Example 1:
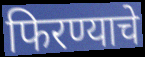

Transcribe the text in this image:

फिरण्याचे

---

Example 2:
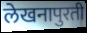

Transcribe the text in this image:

लेखनापुरती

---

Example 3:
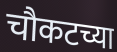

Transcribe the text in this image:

चौकटच्या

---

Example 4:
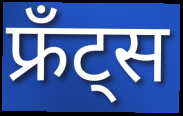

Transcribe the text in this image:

फ्रँट्स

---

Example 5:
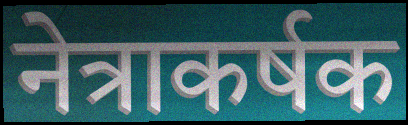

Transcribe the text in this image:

नेत्राकर्षक